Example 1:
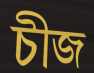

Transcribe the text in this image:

চীজ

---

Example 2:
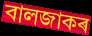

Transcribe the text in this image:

বালজাকৰ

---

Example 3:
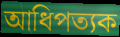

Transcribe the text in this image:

আধিপত্যক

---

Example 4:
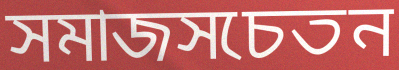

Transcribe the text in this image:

সমাজসচেতন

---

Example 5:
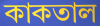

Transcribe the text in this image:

কাকতাল